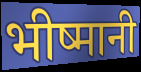
भीष्मानी